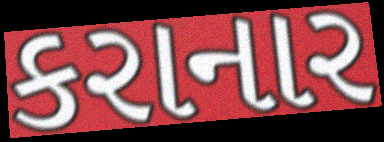
કરાનાર